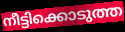
നീട്ടിക്കൊടുത്ത